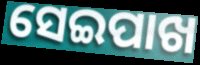
ସେଇପାଖ